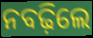
ନବଢ଼ିଲେ